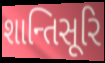
શાન્તિસૂરિ